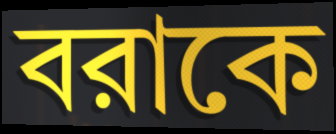
বরাকে